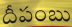
దీపంబు